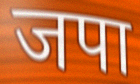
जपा